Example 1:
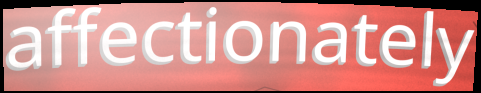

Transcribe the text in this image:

affectionately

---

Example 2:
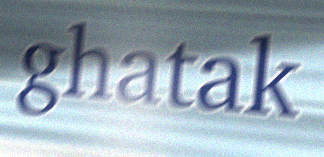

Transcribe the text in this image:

ghatak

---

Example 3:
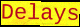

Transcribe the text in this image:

Delays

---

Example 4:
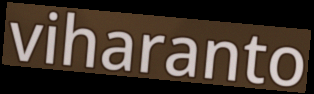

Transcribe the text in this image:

viharanto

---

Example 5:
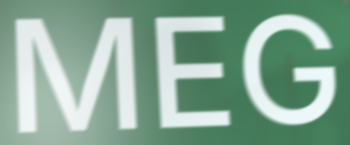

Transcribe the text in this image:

MEG